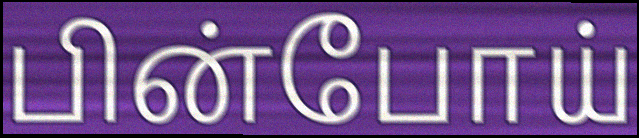
பின்போய்